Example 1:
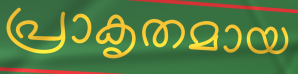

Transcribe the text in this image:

പ്രാകൃതമായ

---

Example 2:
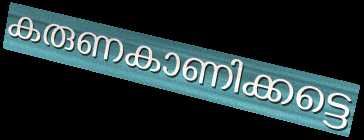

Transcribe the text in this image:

കരുണകാണിക്കട്ടെ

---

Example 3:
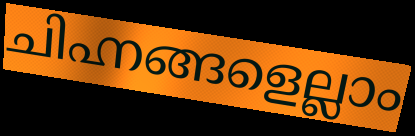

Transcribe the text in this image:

ചിഹ്നങ്ങളെല്ലാം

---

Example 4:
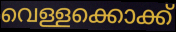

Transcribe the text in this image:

വെള്ളക്കൊക്ക്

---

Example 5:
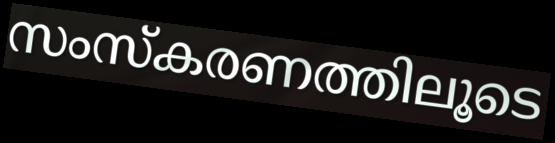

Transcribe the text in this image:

സംസ്കരണത്തിലൂടെ